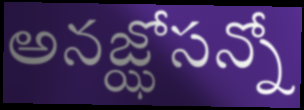
అనజ్ఝోసన్నో